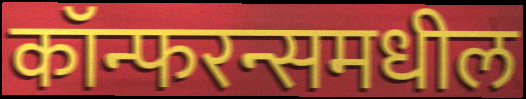
कॉन्फरन्समधील